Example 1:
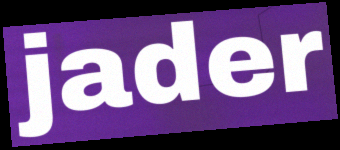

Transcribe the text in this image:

jader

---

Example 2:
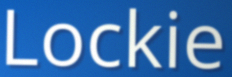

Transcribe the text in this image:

Lockie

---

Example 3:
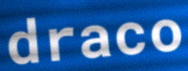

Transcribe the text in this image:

draco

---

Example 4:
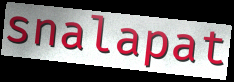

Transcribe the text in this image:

snalapat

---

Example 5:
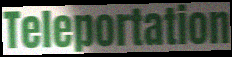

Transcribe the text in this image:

Teleportation